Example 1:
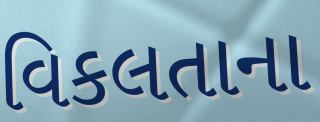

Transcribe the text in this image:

વિકલતાના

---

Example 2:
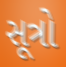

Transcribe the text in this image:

સૂત્રો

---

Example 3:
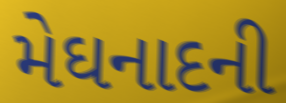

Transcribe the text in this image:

મેઘનાદની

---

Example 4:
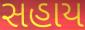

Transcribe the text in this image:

સહાય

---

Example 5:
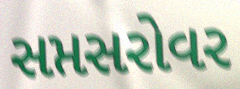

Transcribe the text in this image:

સપ્તસરોવર